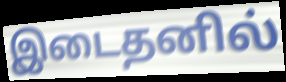
இடைதனில்